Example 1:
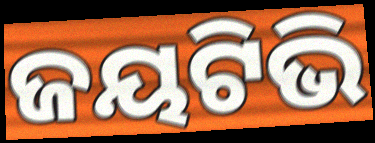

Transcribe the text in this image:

ଜୟଟିଭି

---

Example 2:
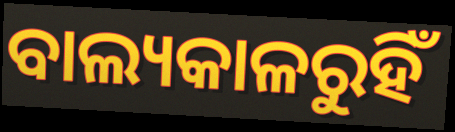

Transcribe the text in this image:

ବାଲ୍ୟକାଳରୁହିଁ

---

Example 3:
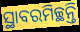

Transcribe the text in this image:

ସ୍ଥାବରମିଚ୍ଛନ୍ତି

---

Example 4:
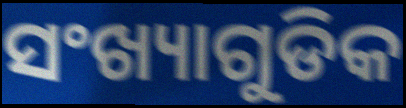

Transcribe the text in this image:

ସଂଖ୍ୟାଗୁଡିକ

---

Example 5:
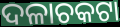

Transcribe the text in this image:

ଦଳାଚକଟା